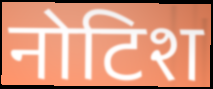
नोटिश